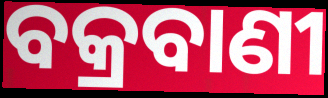
ବକ୍ରବାଣୀ